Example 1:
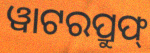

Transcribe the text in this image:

ୱାଟରପ୍ରୁଫ୍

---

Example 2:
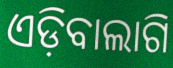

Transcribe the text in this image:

ଏଡ଼ିବାଲାଗି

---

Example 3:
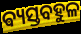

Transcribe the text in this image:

ଵ୍ୟସ୍ତବହୁଳ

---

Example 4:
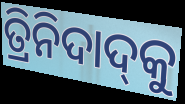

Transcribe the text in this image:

ତ୍ରିନିଦାଦ୍‍କୁ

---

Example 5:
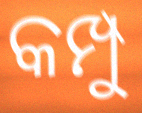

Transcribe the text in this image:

କମ୍ପୁ